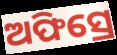
ଅଫିସ୍ରେ